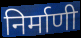
निर्माणी